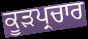
ਕੂੜਪ੍ਰਚਾਰ